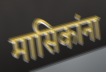
मासिकांना